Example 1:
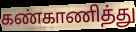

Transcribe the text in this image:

கண்காணித்து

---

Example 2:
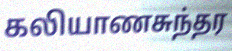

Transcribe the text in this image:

கலியாணசுந்தர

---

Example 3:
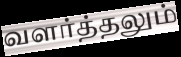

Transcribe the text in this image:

வளர்த்தலும்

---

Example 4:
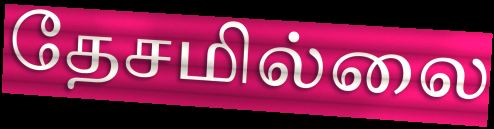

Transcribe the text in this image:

தேசமில்லை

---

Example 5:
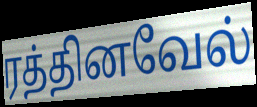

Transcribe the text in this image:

ரத்தினவேல்